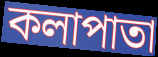
কলাপাতা